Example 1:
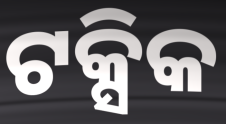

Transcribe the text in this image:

ଟକ୍ସିକ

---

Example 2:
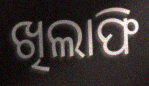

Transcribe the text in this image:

ଖିଲାଫି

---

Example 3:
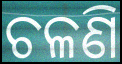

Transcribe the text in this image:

ଚଳଣି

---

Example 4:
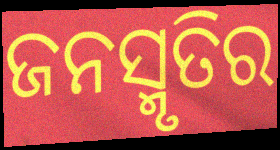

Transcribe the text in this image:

ଜନସ୍ମୃତିର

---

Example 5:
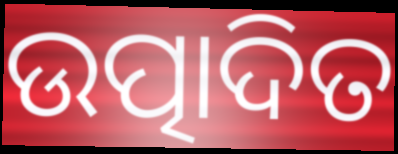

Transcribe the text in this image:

ଉତ୍ପାଦିତ